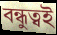
বন্ধুত্বই